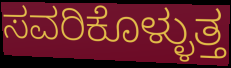
ಸವರಿಕೊಳ್ಳುತ್ತ